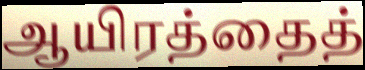
ஆயிரத்தைத்